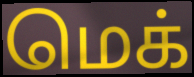
மெக்